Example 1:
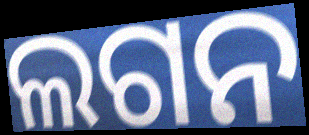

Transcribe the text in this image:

ଲଗନ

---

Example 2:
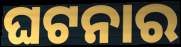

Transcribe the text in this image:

ଘଟନାର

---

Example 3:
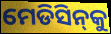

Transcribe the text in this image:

ମେଡିସିନ୍‌କୁ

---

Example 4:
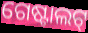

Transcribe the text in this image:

ଗେଷ୍ଟାଲଟ୍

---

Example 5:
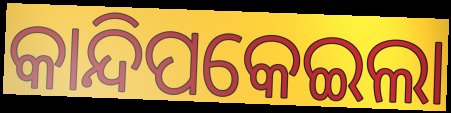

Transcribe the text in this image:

କାନ୍ଦିପକେଇଲା